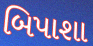
બિપાશા